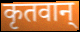
कृतवान्